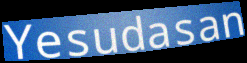
Yesudasan